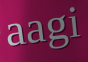
aagi